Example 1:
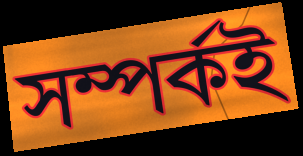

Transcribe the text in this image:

সম্পৰ্কই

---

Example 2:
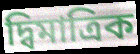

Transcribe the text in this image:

দ্বিমাত্ৰিক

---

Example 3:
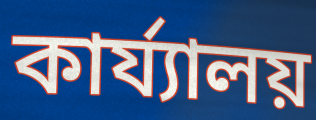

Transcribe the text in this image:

কাৰ্য্যালয়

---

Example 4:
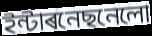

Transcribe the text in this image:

ইন্টাৰনেছনেলো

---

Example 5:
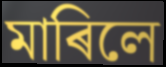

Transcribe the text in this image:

মাৰিলে